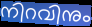
നിറവിനും